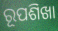
ରୂପଶିଖା